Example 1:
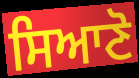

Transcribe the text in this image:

ਸਿਆਣੋ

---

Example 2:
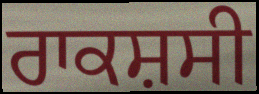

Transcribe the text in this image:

ਰਾਕਸ਼ਸੀ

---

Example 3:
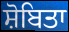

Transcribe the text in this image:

ਸ਼ੋਬਿਤਾ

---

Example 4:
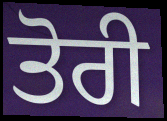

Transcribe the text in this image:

ਤੋਰੀ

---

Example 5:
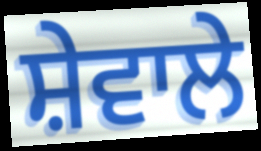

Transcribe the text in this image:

ਸ਼ੇਵਾਲੇ